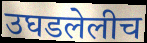
उघडलेलीच